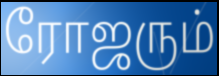
ரோஜரும்